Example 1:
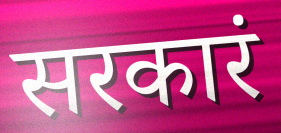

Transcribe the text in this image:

सरकारं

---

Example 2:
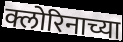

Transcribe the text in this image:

क्लोरिनाच्या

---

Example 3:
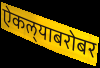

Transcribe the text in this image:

ऐकल्याबरोबर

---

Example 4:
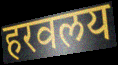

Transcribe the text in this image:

हरवलय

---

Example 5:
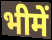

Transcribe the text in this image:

भीमें